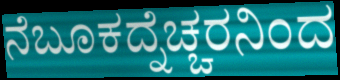
ನೆಬೂಕದ್ನೆಚ್ಚರನಿಂದ